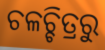
ଚଳଚ୍ଚିତ୍ରରୁ